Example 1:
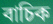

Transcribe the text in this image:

বাচিক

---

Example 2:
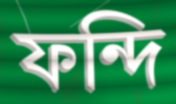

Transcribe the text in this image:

ফন্দি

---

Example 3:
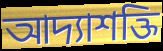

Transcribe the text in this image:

আদ্যাশক্তি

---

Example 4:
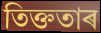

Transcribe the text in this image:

তিক্ততাৰ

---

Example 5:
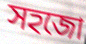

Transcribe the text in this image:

সহজো